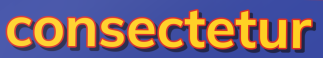
consectetur